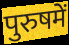
पुरुषमें